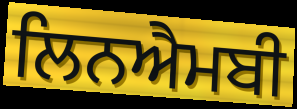
ਲਿਨਐਮਬੀ